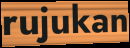
rujukan